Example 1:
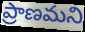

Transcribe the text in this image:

ప్రాణమని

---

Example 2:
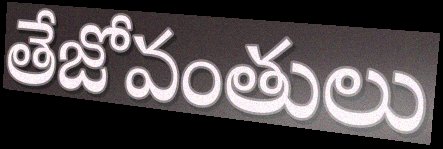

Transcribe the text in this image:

తేజోవంతులు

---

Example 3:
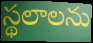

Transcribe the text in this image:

స్థలాలను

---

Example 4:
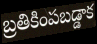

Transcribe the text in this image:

బ్రతికింపబడ్డాక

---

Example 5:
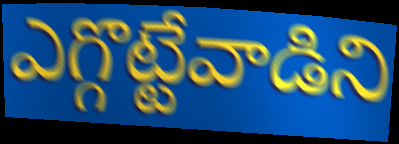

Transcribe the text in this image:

ఎగ్గొట్టేవాడిని